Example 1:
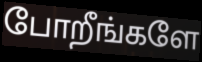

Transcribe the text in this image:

போறீங்களே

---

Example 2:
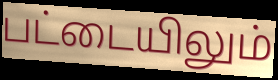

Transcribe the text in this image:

பட்டையிலும்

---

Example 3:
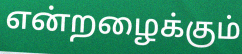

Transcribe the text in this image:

என்றழைக்கும்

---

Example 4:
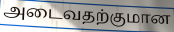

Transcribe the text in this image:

அடைவதற்குமான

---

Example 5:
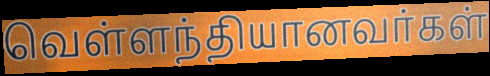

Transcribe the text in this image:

வெள்ளந்தியானவர்கள்